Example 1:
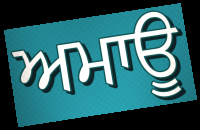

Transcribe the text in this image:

ਅਮਾਊ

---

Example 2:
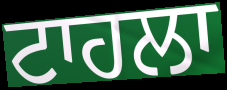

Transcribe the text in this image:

ਟਾਹਲਾ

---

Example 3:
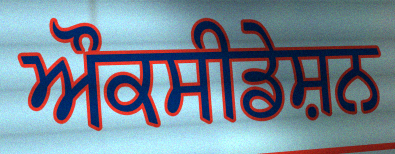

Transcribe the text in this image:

ਔਕਸੀਡੇਸ਼ਨ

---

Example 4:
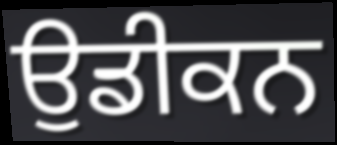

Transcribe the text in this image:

ਉਡੀਕਨ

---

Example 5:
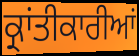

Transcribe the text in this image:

ਕ੍ਰਾਂਤੀਕਾਰੀਆਂ